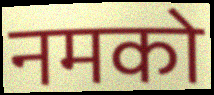
नमको